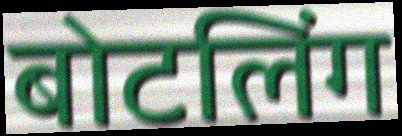
बोटलिंग